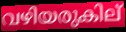
വഴിയരുകില്